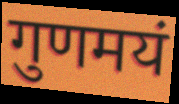
गुणमयं